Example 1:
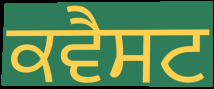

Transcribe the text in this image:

ਕਵੈਸਟ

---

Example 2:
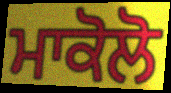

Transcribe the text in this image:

ਮਾਕੋਲੋ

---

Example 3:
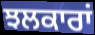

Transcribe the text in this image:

ਝਲਕਾਰਾਂ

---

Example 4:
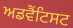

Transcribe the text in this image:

ਅਡਵੈਂਟਿਸਟ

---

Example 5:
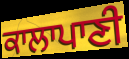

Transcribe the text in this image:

ਕਾਲਾਪਾਣੀ